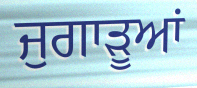
ਜੁਗਾੜੂਆਂ